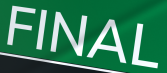
FINAL